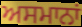
ਅਸਮਾਨਾਂ